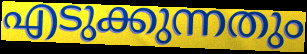
എടുക്കുന്നതും